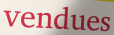
vendues